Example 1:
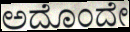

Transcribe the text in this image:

ಅದೊಂದೇ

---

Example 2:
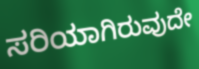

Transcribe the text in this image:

ಸರಿಯಾಗಿರುವುದೇ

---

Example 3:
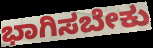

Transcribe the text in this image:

ಭಾಗಿಸಬೇಕು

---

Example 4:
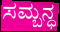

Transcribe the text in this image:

ಸಮ್ಬನ್ಧ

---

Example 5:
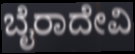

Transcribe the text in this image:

ಬೈರಾದೇವಿ